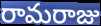
రామరాజు